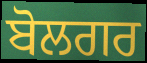
ਬੋਲਗਰ